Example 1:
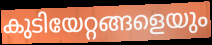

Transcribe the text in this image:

കുടിയേറ്റങ്ങളെയും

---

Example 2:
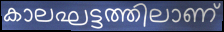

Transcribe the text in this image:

കാലഘട്ടത്തിലാണ്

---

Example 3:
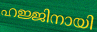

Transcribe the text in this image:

ഹജ്ജിനായി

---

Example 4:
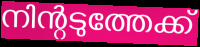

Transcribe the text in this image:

നിന്റടുത്തേക്ക്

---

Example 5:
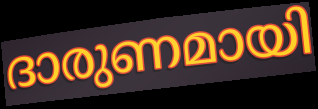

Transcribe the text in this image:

ദാരുണമായി